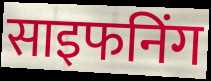
साइफनिंग